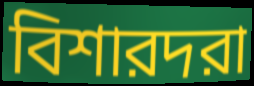
বিশারদরা